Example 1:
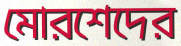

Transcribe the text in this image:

মোরশেদের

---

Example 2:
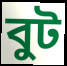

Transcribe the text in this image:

বুট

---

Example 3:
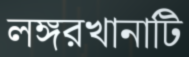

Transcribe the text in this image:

লঙ্গরখানাটি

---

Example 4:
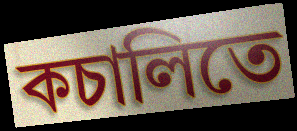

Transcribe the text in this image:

কচালিতে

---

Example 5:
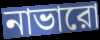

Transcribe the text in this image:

নাভারো